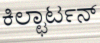
ಕಿಲ್ಟಾರ್ಟನ್